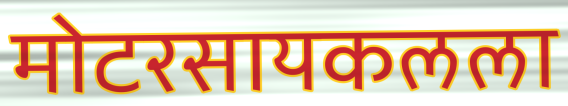
मोटरसायकलला